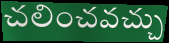
చలించవచ్చు